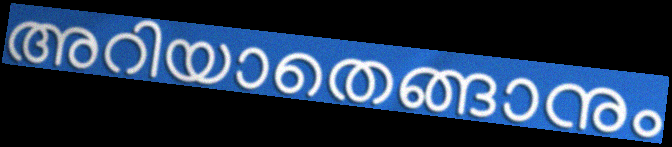
അറിയാതെങ്ങാനും